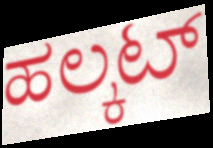
ಹಲ್ಕಟ್